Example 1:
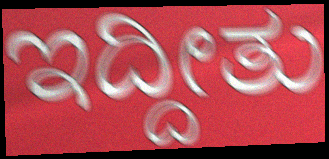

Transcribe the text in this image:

ಇದ್ದೀತು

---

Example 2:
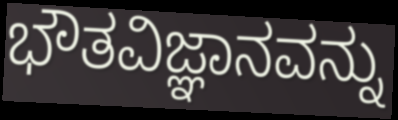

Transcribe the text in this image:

ಭೌತವಿಜ್ಞಾನವನ್ನು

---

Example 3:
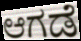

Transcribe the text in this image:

ಆಗಡೆ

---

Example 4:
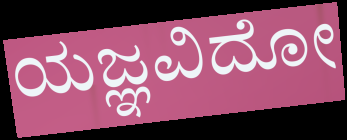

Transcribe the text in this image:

ಯಜ್ಞವಿದೋ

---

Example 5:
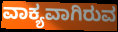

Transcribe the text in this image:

ವಾಕ್ಯವಾಗಿರುವ